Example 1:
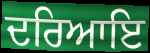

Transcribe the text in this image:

ਦਰਿਆਇ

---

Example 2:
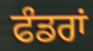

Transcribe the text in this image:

ਫੰਡਰਾਂ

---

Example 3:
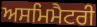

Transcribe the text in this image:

ਅਸਮਿਮੈਟਰੀ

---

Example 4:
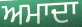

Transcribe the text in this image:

ਅਮਾਦਾ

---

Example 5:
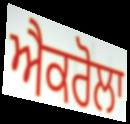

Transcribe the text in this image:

ਐਕਰੋਲਾ